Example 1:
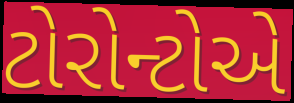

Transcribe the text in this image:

ટોરોન્ટોએ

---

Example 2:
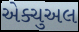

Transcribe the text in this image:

એક્ચુઅલ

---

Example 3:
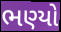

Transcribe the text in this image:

ભણ્યો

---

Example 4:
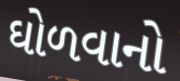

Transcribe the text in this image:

ઘોળવાનો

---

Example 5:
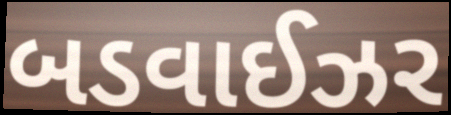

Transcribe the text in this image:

બડવાઈઝર